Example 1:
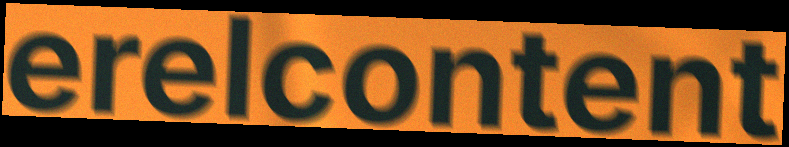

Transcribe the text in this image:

erelcontent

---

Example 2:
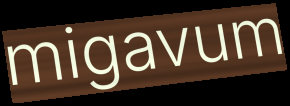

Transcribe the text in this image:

migavum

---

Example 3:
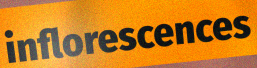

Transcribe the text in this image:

inflorescences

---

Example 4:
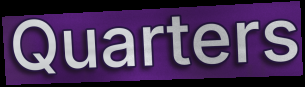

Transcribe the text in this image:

Quarters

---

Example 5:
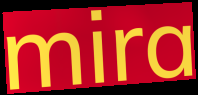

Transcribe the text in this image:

mira